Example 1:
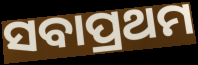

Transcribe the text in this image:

ସବାପ୍ରଥମ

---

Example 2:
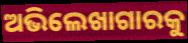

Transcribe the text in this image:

ଅଭିଲେଖାଗାରକୁ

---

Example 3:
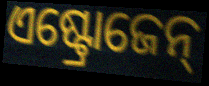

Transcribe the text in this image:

ଏଷ୍ଟ୍ରୋଜେନ୍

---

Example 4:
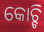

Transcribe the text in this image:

କୋଚ୍ଚି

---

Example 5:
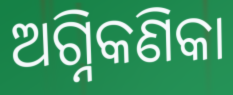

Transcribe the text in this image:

ଅଗ୍ନିକଣିକା